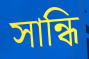
সান্ধি